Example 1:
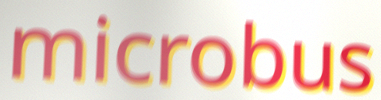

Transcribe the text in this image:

microbus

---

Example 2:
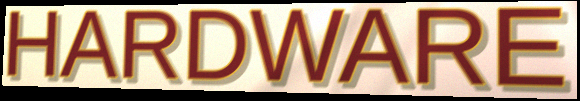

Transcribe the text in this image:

HARDWARE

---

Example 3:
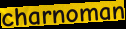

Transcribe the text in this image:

charnoman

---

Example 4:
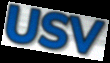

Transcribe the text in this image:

USV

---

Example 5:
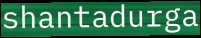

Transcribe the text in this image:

shantadurga